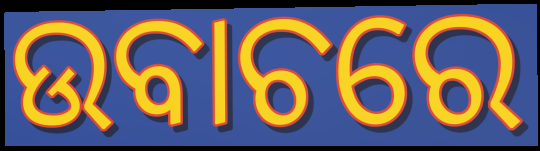
ଉବାଚରେ